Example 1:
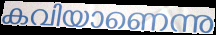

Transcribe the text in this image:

കവിയാണെന്നു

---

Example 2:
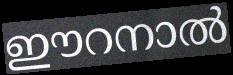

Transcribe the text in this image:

ഈറനാൽ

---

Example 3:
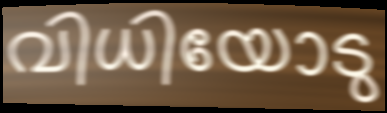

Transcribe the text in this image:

വിധിയോടു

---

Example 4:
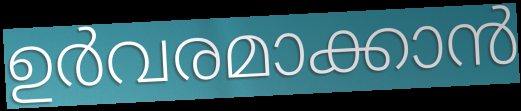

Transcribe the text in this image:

ഉർവരമാക്കാൻ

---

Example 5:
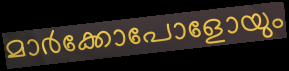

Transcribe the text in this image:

മാർക്കോപോളോയും